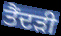
ਤੈਂਦੜੀ